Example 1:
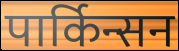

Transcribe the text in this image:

पार्किन्सन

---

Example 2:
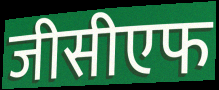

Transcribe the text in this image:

जीसीएफ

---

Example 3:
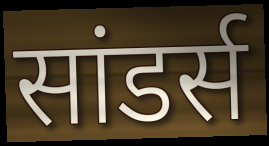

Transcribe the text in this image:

सांडर्स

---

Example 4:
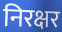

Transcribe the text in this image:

निरक्षर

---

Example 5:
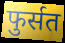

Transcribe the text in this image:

फुर्सत